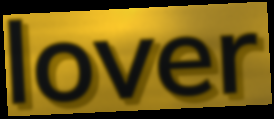
lover